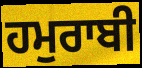
ਹਮੁਰਾਬੀ